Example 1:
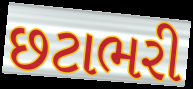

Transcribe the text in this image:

છટાભરી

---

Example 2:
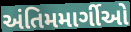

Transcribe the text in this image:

અંતિમમાર્ગીઓ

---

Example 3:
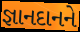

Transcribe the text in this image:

જ્ઞાનદાનને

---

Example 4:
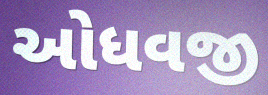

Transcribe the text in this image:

ઓધવજી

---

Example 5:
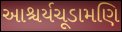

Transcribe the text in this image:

આશ્ચર્યચૂડામણિ